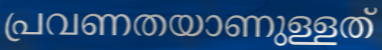
പ്രവണതയാണുള്ളത്